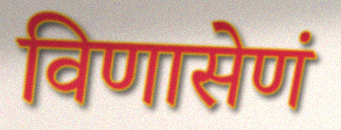
विणासेणं